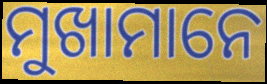
ମୁଖାମାନେ